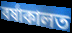
বৰ্ষাকালত